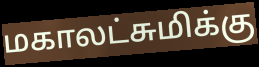
மகாலட்சுமிக்கு